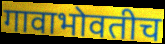
गावाभोवतीच